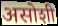
असोशी